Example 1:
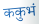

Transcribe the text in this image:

ककुभं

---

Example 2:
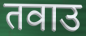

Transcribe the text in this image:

तवाउ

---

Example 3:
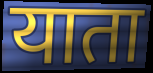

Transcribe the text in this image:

याता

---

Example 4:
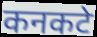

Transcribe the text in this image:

कनकटे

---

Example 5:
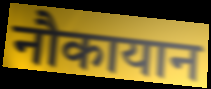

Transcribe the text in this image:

नौकायान